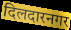
दिलदारनगर